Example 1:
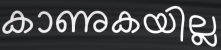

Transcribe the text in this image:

കാണുകയില്ല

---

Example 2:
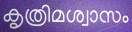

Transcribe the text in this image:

കൃത്രിമശ്വാസം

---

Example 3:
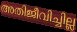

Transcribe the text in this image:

അതിജീവിച്ചില്ല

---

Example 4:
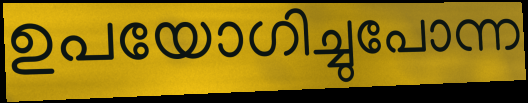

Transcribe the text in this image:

ഉപയോഗിച്ചുപോന്ന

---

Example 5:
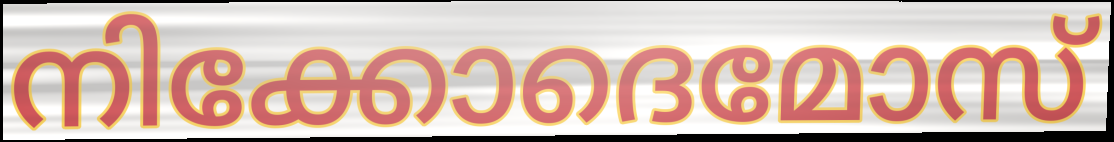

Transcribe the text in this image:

നിക്കോദെമോസ്